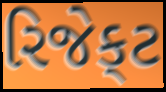
રિજેક્‌ટ